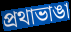
প্রথাভাঙা